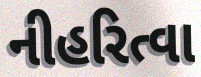
નીહરિત્વા